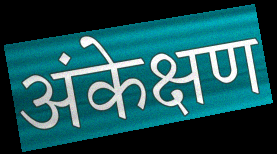
अंकेक्षण